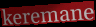
keremane